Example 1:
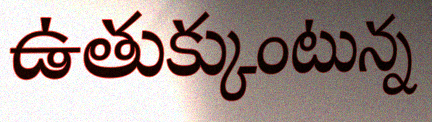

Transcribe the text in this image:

ఉతుక్కుంటున్న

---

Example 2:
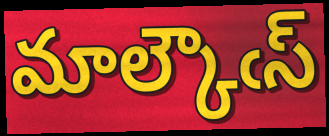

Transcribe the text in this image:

మాల్కౌఁస్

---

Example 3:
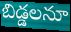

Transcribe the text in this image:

బిడ్డలనూ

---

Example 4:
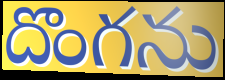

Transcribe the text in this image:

దొంగను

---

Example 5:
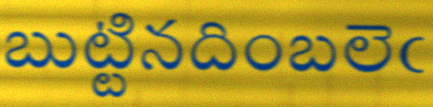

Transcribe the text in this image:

బుట్టినదింబలెఁ